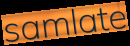
samlate